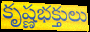
కృష్ణభక్తులు